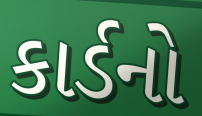
કાર્ડનો